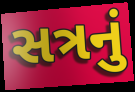
સત્રનું